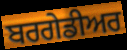
ਬਰਗੇਡੀਅਰ